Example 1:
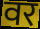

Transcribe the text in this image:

वर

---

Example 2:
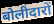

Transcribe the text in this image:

बोलीदारों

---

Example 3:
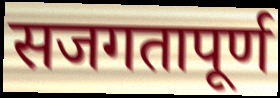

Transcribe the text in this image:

सजगतापूर्ण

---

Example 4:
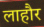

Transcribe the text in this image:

लाहौर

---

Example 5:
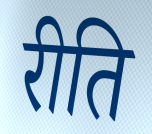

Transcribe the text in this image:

रीति